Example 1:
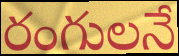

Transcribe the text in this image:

రంగులనే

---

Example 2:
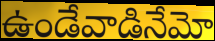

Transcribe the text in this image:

ఉండేవాడినేమో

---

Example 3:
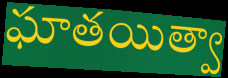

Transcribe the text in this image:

ఘాతయిత్వా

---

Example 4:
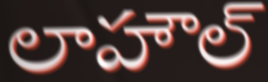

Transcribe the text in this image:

లాహౌల్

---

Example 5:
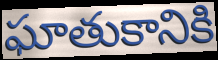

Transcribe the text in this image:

ఘాతుకానికి